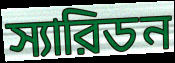
স্যারিডন